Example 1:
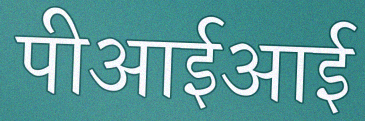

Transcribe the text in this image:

पीआईआई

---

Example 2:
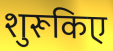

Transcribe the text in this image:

शुरूकिए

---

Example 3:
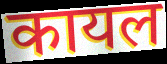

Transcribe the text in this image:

कायल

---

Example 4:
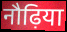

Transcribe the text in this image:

नौढ़िया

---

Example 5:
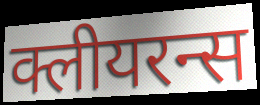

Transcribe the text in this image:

क्लीयरन्स